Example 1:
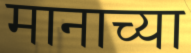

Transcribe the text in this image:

मानाच्या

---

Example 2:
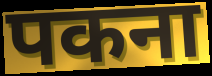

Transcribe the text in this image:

पकना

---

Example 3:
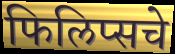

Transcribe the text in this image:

फिलिप्सचे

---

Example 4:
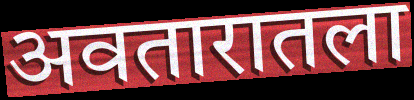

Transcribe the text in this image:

अवतारातला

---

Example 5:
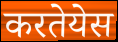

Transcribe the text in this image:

करतेयेस